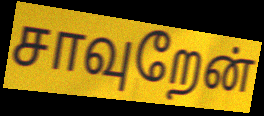
சாவுறேன்